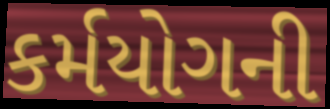
કર્મયોગની